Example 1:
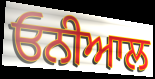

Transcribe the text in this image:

ਓਨੀਆਲ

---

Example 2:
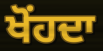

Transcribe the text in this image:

ਖੋਂਹਦਾ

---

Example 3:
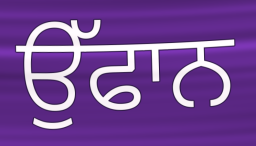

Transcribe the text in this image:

ਉੱਫਾਨ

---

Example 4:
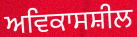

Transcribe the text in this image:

ਅਵਿਕਾਸਸ਼ੀਲ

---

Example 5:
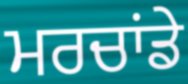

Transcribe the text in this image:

ਮਰਚਾਂਡੇ